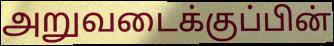
அறுவடைக்குப்பின்